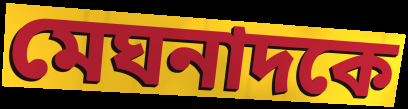
মেঘনাদকে